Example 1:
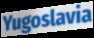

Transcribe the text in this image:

Yugoslavia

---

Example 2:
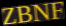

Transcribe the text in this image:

ZBNF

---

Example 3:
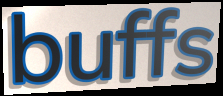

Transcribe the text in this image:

buffs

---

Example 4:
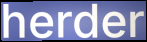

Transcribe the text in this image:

herder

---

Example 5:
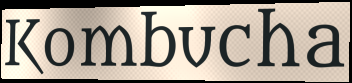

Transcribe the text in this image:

Kombucha